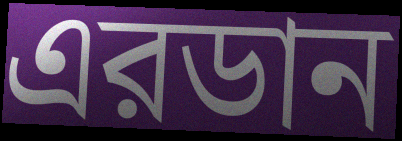
এরডান